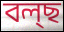
বল্‌ছ